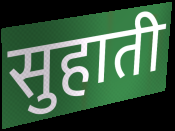
सुहाती